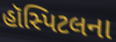
હૉસ્પિટલના